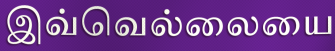
இவ்வெல்லையை